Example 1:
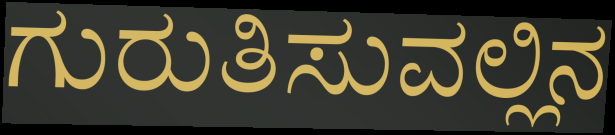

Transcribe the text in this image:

ಗುರುತಿಸುವಲ್ಲಿನ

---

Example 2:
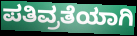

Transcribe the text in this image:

ಪತಿವ್ರತೆಯಾಗಿ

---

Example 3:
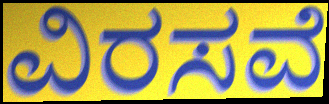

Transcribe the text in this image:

ವಿರಸವೆ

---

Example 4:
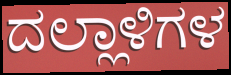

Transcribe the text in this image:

ದಲ್ಲಾಳಿಗಳ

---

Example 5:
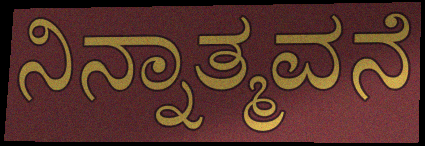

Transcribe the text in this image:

ನಿನ್ನಾತ್ಮವನೆ